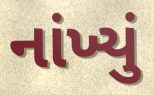
નાંખ્યું